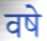
वषे